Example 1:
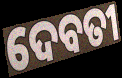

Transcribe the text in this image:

ଦେବତୀ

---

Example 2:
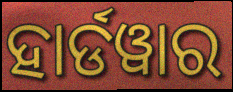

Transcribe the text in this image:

ହାର୍ଡୱାର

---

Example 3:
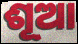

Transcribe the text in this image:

ଶୂଆ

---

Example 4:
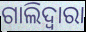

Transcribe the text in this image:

ଗାଲିଦ୍ଵାରା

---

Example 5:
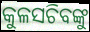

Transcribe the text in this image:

କୁଳସଚିବଙ୍କୁ